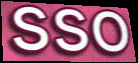
sso